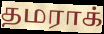
தமராக்